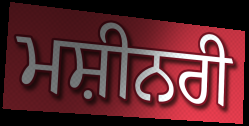
ਮਸ਼ੀਨਰੀ